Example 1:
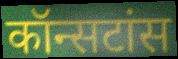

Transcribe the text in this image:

कॉन्सटांस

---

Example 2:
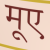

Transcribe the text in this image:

मूए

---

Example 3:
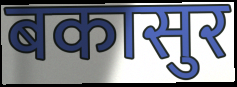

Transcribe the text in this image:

बकासुर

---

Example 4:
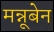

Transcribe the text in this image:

मन्नूबेन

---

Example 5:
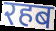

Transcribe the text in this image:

रहब